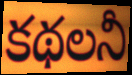
కథలనీ